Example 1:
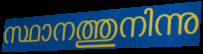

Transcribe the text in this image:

സ്ഥാനത്തുനിന്നു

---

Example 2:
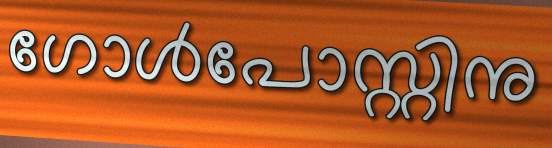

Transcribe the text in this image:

ഗോൾപോസ്റ്റിനു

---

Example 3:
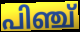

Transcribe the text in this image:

പിഞ്ച്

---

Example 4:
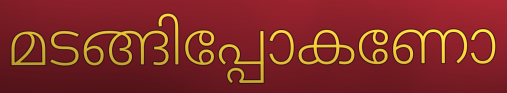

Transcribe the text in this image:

മടങ്ങിപ്പോകണോ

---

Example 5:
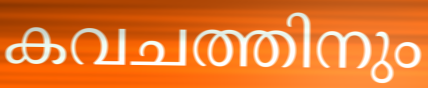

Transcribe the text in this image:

കവചത്തിനും